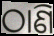
ଠାଣି